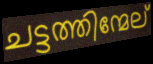
ചട്ടത്തിന്മേല്